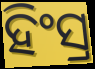
ହିଂସ୍ର